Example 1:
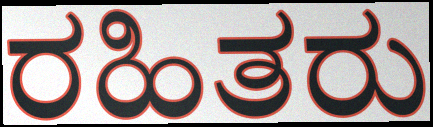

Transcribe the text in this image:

ರಹಿತರು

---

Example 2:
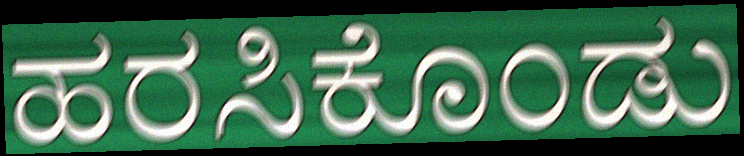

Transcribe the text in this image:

ಹರಸಿಕೊಂಡು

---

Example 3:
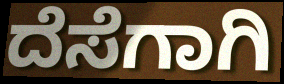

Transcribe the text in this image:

ದೆಸೆಗಾಗಿ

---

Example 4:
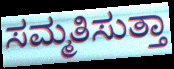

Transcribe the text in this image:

ಸಮ್ಮತಿಸುತ್ತಾ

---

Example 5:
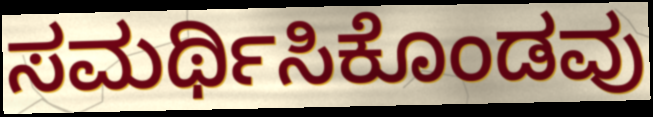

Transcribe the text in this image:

ಸಮರ್ಥಿಸಿಕೊಂಡವು